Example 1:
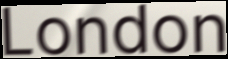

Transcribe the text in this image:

London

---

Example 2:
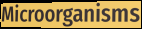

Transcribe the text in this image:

Microorganisms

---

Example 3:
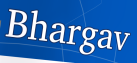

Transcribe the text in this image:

Bhargav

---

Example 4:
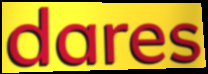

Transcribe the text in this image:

dares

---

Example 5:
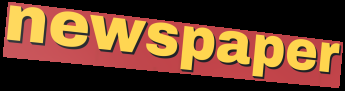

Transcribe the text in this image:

newspaper